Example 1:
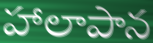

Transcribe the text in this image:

హాలాపాన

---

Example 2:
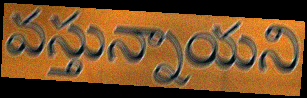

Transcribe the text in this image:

వస్తున్నాయని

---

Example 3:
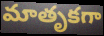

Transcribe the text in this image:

మాతృకగా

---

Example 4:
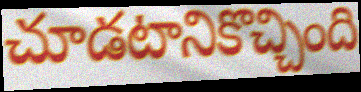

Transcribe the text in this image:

చూడటానికొచ్చింది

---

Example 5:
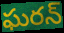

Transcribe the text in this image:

ఘరన్